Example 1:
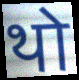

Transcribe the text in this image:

थो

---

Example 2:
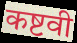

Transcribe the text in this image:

कष्टवी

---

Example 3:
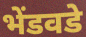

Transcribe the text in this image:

भेंडवडे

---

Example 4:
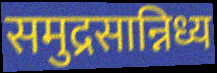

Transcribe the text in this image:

समुद्रसान्निध्य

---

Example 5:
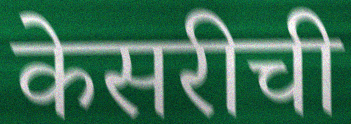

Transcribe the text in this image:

केसरीची